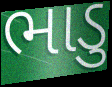
ભાડુ